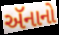
ઍનાનો